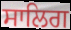
ਸਾਲਿਗ